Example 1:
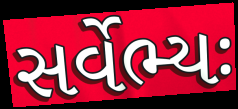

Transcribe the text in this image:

સર્વેભ્યઃ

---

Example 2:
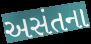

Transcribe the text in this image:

અસંતના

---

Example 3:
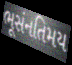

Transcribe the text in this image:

ભૂસંનતિમય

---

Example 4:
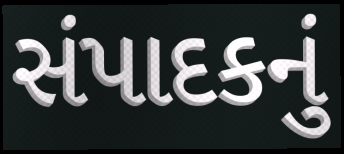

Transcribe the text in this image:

સંપાદકનું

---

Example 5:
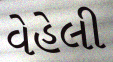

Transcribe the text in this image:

વેહેલી